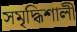
সমৃদ্ধিশালী